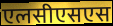
एलसीएसएस